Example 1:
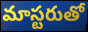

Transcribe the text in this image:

మాస్టరుతో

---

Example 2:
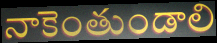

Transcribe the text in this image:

నాకెంతుండాలి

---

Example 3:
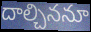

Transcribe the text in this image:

దాల్చిననూ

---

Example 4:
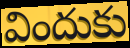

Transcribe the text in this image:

విందుకు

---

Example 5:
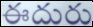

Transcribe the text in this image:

ఈదురు